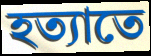
হত্যাতে